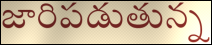
జారిపడుతున్న